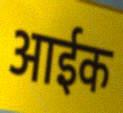
आईक